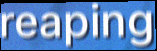
reaping